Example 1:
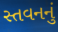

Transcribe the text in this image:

સ્તવનનું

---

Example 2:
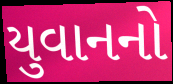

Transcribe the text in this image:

યુવાનનો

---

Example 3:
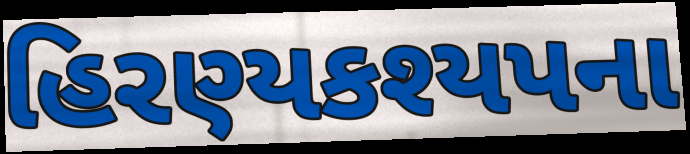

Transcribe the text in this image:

હિરણ્યકશ્યપના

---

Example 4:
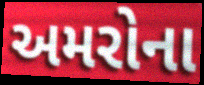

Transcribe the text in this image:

અમરોના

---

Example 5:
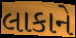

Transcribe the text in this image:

લાકાને